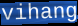
vihang